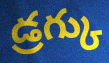
డ్రగ్కు